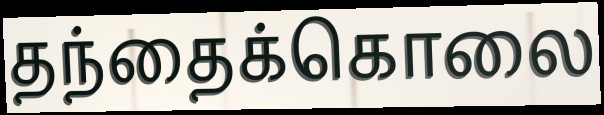
தந்தைக்கொலை